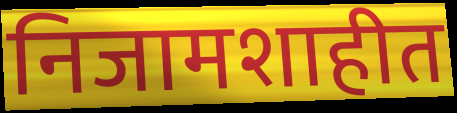
निजामशाहीत